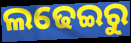
ଲଢେଇରୁ